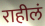
राहीलं